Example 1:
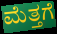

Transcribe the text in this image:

ಮೆತ್ತಗೆ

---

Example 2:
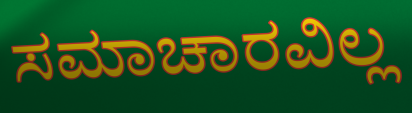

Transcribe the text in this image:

ಸಮಾಚಾರವಿಲ್ಲ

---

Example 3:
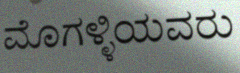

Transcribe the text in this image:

ಮೊಗಳ್ಳಿಯವರು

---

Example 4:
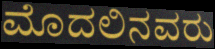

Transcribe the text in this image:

ಮೊದಲಿನವರು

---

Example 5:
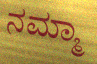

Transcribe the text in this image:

ನಮ್ಮಾ